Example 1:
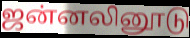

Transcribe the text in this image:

ஜன்னலினூடு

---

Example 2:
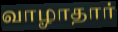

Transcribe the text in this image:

வாழாதார்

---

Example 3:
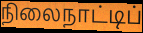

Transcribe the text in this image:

நிலைநாட்டிப்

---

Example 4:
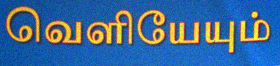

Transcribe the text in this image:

வெளியேயும்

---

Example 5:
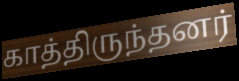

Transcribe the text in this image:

காத்திருந்தனர்